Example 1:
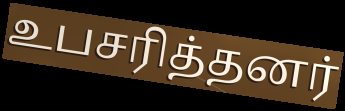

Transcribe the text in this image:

உபசரித்தனர்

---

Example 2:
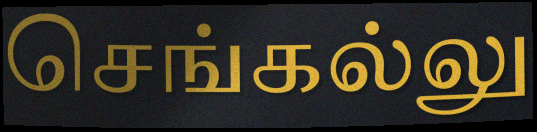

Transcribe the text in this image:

செங்கல்லு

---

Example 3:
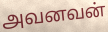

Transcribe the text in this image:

அவனவன்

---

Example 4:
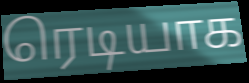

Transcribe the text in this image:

ரெடியாக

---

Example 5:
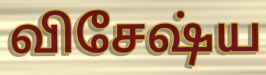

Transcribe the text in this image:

விசேஷ்ய